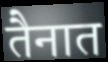
तैनात